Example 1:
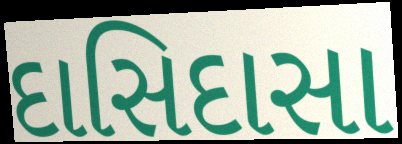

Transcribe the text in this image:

દાસિદાસા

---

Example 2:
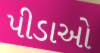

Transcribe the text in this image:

પીડાઓ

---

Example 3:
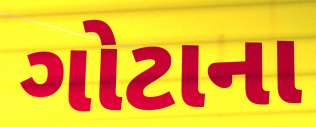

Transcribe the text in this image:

ગોટાના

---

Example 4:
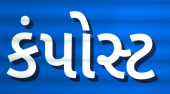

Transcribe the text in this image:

કંપોસ્ટ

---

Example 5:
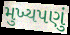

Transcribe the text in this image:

મુખ્યપણું